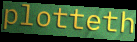
plotteth